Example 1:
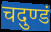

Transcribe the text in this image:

चदुण्डं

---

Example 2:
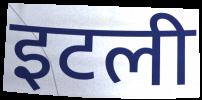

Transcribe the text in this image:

इटली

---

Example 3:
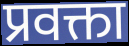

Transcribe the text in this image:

प्रवक्ता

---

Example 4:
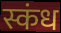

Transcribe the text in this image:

स्कंध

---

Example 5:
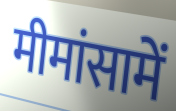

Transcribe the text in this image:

मीमांसामें